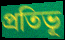
প্রতিভূ